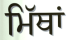
ਮਿੱਥਾਂ